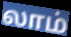
லாம்